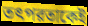
তৎপরতাকেই